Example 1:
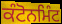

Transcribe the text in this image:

ਕੰਟੋਨਮਿੰਟ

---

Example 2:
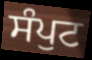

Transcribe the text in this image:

ਸੰਪੁਟ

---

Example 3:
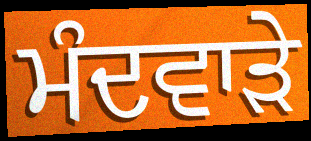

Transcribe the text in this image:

ਮੰਦਵਾੜੇ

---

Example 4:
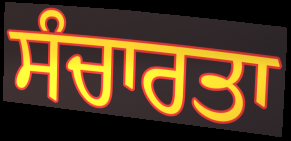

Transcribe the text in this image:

ਸੰਚਾਰਤਾ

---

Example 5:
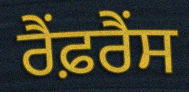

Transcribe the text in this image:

ਰੈਂਫ਼ਰੈਂਸ